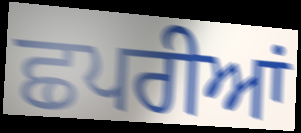
ਛਪਰੀਆਂ